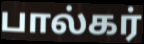
பால்கர்